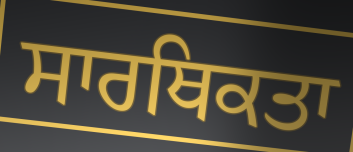
ਸਾਰਥਿਕਤਾ